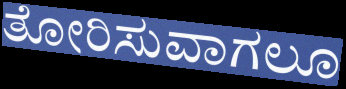
ತೋರಿಸುವಾಗಲೂ